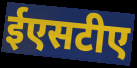
ईएसटीए